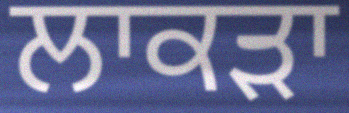
ਲਾਕੜਾ